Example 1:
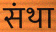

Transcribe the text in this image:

संथा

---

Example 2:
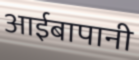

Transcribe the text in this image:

आईबापानी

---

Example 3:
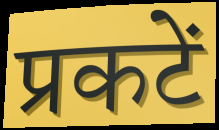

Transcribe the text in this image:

प्रकटें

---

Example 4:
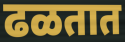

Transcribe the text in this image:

ढळतात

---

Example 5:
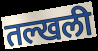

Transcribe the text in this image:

तल्खली